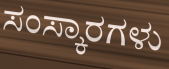
ಸಂಸ್ಕಾರಗಳು